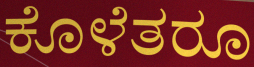
ಕೊಳೆತರೂ